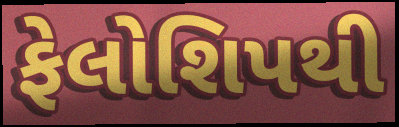
ફેલોશિપથી